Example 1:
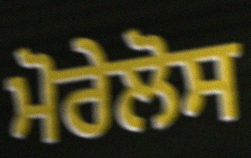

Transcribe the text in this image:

ਮੋਰੇਲੋਸ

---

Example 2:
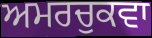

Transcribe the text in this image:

ਅਮਰਚੁਕਵਾ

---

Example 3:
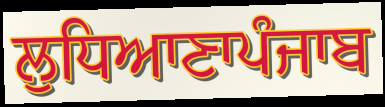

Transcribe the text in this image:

ਲੁਧਿਆਣਾਪੰਜਾਬ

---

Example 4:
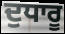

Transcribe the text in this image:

ਦੁਧਾਰੂ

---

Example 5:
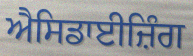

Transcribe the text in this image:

ਐਸਿਡਾਈਜ਼ਿੰਗ